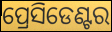
ପ୍ରେସିଡେଣ୍ଟର